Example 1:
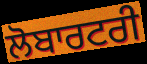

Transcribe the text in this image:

ਲੋਬਾਰਟਰੀ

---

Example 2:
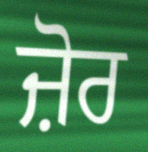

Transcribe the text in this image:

ਜ਼ੋਰ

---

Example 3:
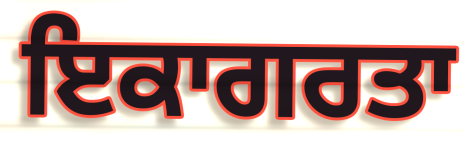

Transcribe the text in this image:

ਇਕਾਗਰਤਾ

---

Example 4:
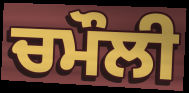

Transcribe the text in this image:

ਚਮੌਲੀ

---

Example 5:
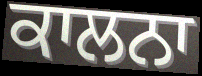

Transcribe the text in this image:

ਕਾਲਨਾ